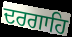
ਦਰਗਾਹਿ